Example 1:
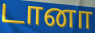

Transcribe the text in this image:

டானா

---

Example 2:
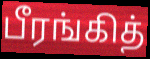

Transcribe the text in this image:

பீரங்கித்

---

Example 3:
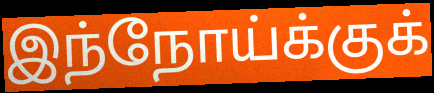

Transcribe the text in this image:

இந்நோய்க்குக்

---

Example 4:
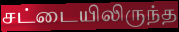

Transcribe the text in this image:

சட்டையிலிருந்த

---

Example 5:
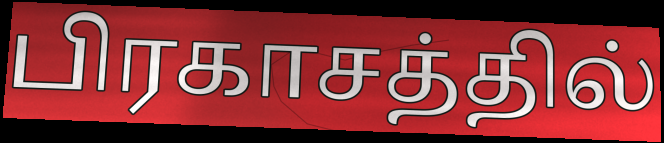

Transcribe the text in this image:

பிரகாசத்தில்